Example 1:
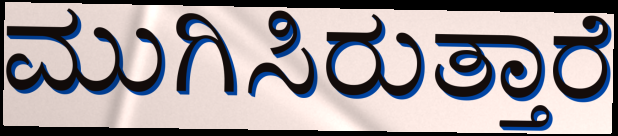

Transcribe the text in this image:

ಮುಗಿಸಿರುತ್ತಾರೆ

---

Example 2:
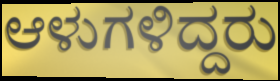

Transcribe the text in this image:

ಆಳುಗಳಿದ್ದರು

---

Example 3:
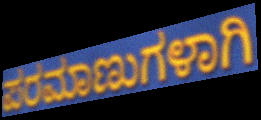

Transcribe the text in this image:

ಪರಮಾಣುಗಳಾಗಿ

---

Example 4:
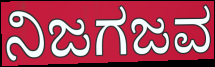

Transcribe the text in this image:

ನಿಜಗಜವ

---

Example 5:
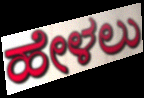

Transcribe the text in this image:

ಹೇಳಲು